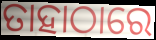
ତାହାଠାରେ